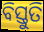
ବିସ୍ତୁତି